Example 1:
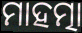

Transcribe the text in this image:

ମାହତ୍ମା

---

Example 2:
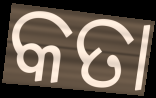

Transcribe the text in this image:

କତା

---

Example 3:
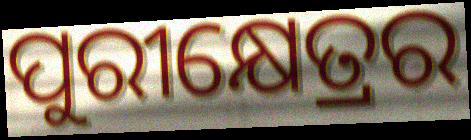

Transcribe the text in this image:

ପୁରୀକ୍ଷେତ୍ରର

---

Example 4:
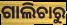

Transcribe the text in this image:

ଗାଲିଚାରୁ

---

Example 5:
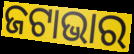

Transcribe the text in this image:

ଜଟାଭାର